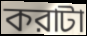
করাটা